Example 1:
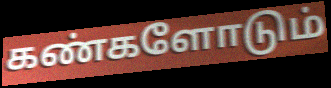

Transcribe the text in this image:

கண்களோடும்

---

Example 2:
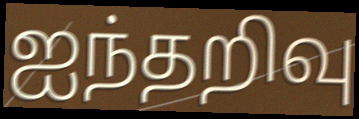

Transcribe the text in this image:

ஐந்தறிவு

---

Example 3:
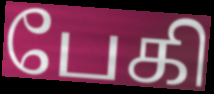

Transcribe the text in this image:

பேகி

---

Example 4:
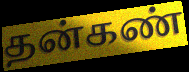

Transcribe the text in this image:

தன்கண்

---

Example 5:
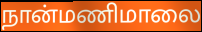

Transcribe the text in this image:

நான்மணிமாலை